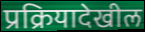
प्रक्रियादेखील